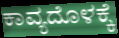
ಕಾವ್ಯದೊಳಕ್ಕೆ